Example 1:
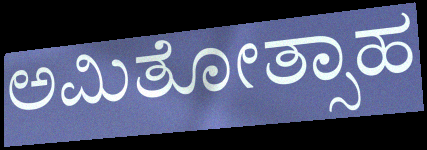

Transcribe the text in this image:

ಅಮಿತೋತ್ಸಾಹ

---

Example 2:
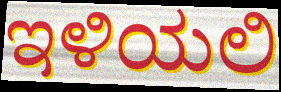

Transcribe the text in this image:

ಇಳಿಯಲಿ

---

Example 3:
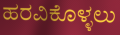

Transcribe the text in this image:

ಹರವಿಕೊಳ್ಳಲು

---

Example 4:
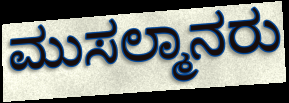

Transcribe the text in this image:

ಮುಸಲ್ಮಾನರು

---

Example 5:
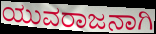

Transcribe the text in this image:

ಯುವರಾಜನಾಗಿ